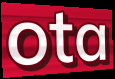
ota